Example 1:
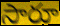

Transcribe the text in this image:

సారూ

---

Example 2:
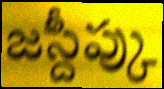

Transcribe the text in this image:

జస్దీప్కు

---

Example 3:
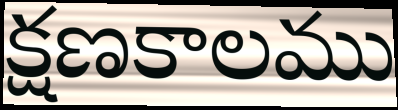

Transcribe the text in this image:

క్షణకాలము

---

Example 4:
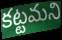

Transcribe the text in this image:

కట్టమని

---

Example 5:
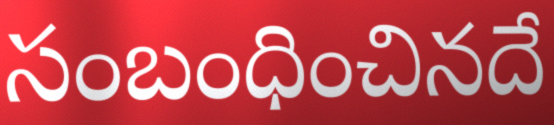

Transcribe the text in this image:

సంబంధించినదే